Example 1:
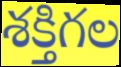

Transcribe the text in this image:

శక్తిగల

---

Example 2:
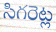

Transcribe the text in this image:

సిగరెట్ల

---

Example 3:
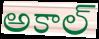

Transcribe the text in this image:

అకాల్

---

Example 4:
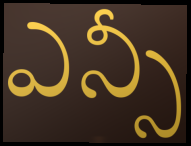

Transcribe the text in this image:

ఎన్సీ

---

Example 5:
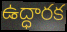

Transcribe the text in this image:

ఉద్ధారక